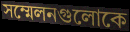
সম্মেলনগুলোকে